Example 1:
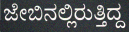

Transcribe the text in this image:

ಜೇಬಿನಲ್ಲಿರುತ್ತಿದ್ದ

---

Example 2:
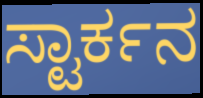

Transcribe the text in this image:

ಸ್ಟಾರ್ಕನ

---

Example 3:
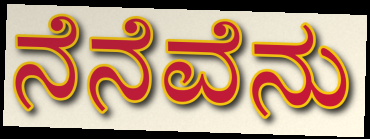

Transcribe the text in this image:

ನೆನೆವೆನು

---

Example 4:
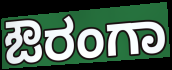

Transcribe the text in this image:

ಔರಂಗಾ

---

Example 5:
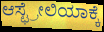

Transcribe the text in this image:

ಆಸ್ಟ್ರೇಲಿಯಾಕ್ಕೆ